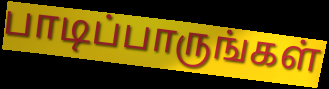
பாடிப்பாருங்கள்